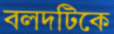
বলদটিকে